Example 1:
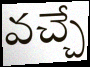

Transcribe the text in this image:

వచ్చే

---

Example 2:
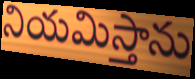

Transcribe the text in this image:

నియమిస్తాను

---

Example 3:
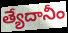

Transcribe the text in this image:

త్యేదానీం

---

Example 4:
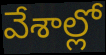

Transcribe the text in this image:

వేశాల్లో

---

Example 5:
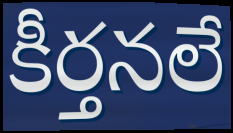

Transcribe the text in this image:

కీర్తనలే